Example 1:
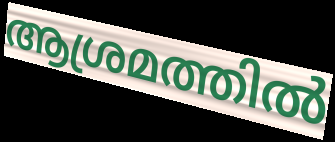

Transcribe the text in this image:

ആശ്രമത്തിൽ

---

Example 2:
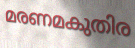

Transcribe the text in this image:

മരണമകുതിര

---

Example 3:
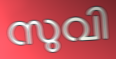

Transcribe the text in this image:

സുവി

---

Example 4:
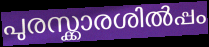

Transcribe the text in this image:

പുരസ്ക്കാരശിൽപ്പം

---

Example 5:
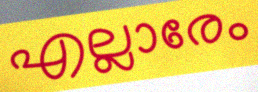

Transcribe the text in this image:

എല്ലാരേം